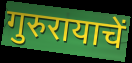
गुरुरायाचें